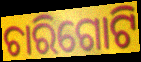
ଚାରିଗୋଟି